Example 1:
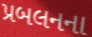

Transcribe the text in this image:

પ્રબલનના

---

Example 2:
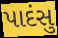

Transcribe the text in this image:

પાદંસુ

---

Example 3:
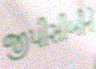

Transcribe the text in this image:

જીપીસીબીને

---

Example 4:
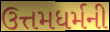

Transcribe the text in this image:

ઉત્તમધર્મની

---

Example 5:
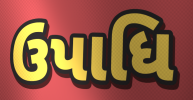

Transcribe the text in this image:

ઉપાધિ